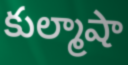
కుల్మాషా